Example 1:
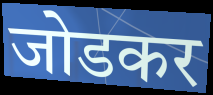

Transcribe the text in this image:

जोडकर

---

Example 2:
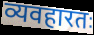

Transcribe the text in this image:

व्यवहारतः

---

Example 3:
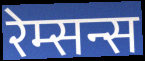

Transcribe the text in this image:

रेम्सन्स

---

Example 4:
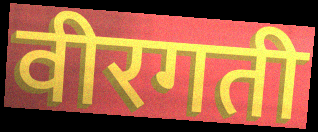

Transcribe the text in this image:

वीरगती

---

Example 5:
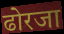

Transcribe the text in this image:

ढोरजा